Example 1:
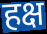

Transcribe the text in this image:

हक्ष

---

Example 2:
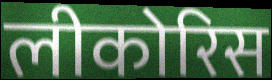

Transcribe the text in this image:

लीकोरिस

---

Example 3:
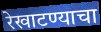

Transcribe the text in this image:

रेखाटण्याचा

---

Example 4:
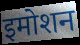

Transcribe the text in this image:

इमोशन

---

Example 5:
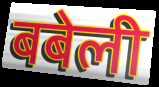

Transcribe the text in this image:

बबेली